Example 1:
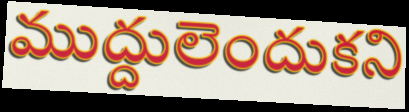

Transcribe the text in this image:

ముద్దులెందుకని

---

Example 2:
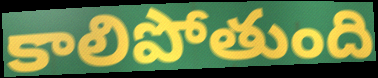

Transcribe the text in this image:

కాలిపోతుంది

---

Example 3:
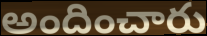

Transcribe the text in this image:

అందించారు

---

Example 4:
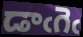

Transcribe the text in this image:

డాఁగెఁ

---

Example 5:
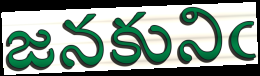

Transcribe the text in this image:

జనకునిఁ